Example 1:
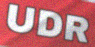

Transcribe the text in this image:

UDR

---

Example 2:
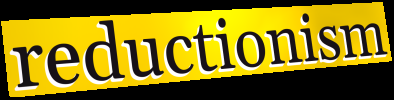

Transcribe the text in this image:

reductionism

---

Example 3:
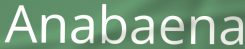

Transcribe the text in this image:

Anabaena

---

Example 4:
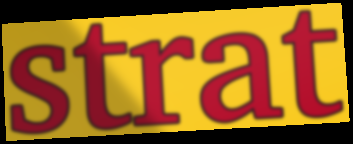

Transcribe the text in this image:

strat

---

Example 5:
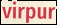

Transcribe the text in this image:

virpur